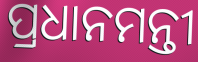
ପ୍ରଧାନମନ୍ତୀ